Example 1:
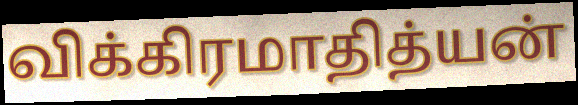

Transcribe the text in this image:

விக்கிரமாதித்யன்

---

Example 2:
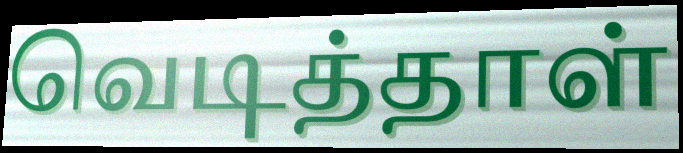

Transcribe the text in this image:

வெடித்தாள்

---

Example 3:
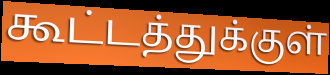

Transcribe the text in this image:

கூட்டத்துக்குள்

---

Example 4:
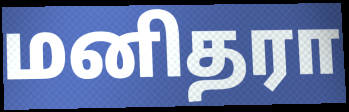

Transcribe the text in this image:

மனிதரா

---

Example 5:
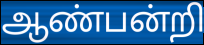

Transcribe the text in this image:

ஆண்பன்றி